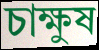
চাক্ষুষ